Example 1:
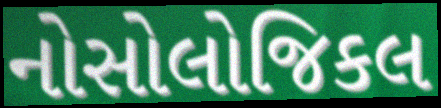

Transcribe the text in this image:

નોસોલોજિકલ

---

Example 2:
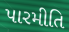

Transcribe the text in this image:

પારમીતિ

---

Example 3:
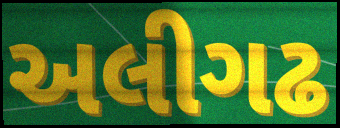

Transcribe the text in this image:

અલીગઢ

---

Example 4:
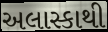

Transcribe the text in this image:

અલાસ્કાથી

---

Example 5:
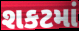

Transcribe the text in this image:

શકટમાં